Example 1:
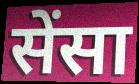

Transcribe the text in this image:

सेंसा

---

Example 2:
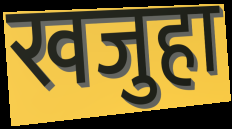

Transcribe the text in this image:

खजुहा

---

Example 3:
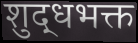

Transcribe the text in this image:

शुद्धभक्त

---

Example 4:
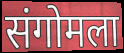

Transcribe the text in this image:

संगोमला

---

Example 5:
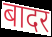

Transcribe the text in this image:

बादर